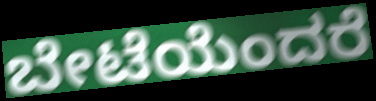
ಬೇಟೆಯೆಂದರೆ